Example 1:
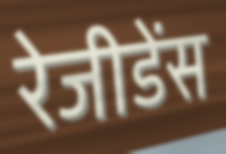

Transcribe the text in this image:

रेजीडेंस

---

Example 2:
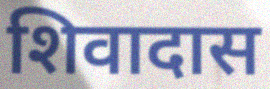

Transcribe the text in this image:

शिवादास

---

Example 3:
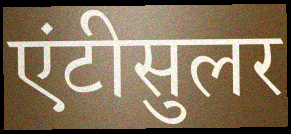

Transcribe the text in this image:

एंटीसुलर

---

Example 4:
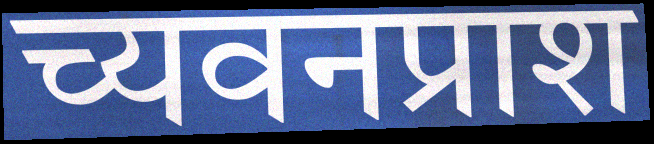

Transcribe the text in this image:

च्‍यवनप्राश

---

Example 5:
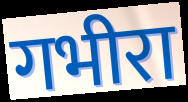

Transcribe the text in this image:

गभीरा